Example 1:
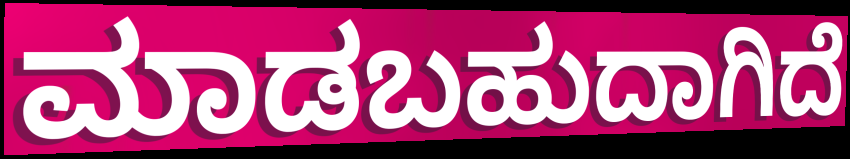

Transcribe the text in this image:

ಮಾಡಬಹುದಾಗಿದೆ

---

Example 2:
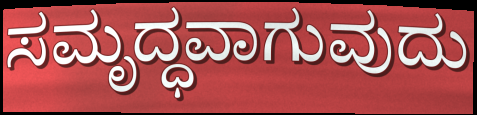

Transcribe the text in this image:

ಸಮೃದ್ಧವಾಗುವುದು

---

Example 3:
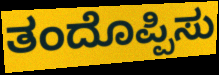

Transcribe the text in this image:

ತಂದೊಪ್ಪಿಸು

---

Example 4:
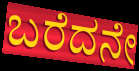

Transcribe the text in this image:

ಬರೆದನೇ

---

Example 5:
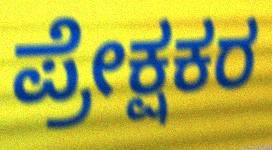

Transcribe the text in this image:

ಪ್ರೇಕ್ಷಕರ